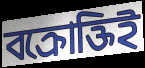
বক্রোক্তিই